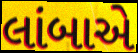
લાંબાએ